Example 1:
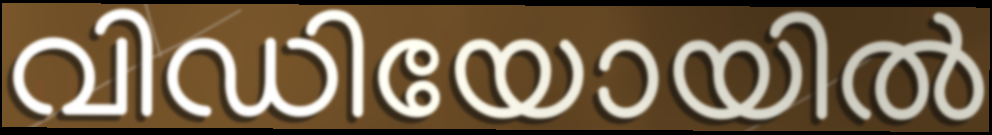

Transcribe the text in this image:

വിഡിയോയിൽ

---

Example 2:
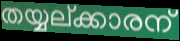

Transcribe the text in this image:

തയ്യല്ക്കാരന്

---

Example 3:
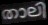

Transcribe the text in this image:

താലി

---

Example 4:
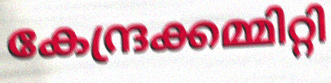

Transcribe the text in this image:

കേന്ദ്രക്കമ്മിറ്റി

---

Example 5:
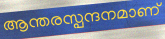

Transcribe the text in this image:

ആന്തരസ്പന്ദനമാണ്